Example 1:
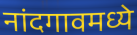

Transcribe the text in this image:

नांदगावमध्ये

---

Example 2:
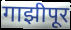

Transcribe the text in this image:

गाझीपूर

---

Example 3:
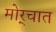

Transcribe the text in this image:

मोर्चात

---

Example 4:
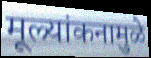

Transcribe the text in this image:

मूल्यांकनामुळे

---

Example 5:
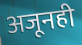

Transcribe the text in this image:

अजूनही